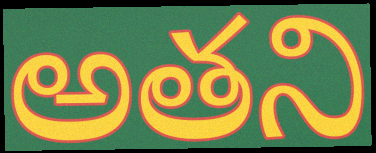
అతని